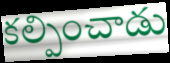
కల్పించాడు